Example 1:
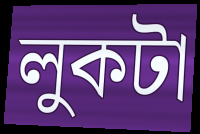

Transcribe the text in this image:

লুকটা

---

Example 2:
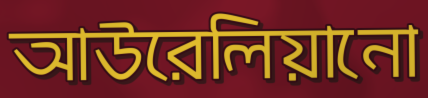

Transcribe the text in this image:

আউরেলিয়ানো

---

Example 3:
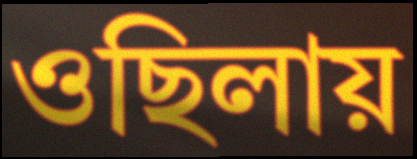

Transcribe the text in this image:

ওছিলায়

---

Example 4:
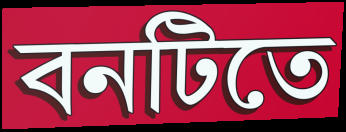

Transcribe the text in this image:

বনটিতে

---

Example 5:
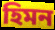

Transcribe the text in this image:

হিমন